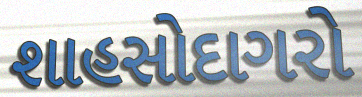
શાહસોદાગરો